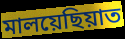
মালয়েছিয়াত